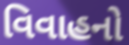
વિવાહનો